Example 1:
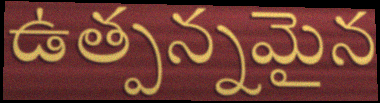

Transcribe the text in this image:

ఉత్పన్నమైన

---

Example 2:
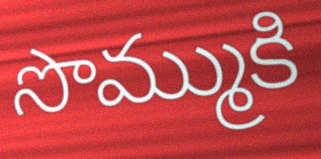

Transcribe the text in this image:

సొమ్ముకి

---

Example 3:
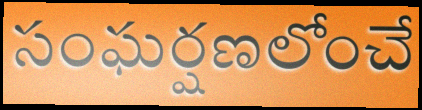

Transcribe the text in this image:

సంఘర్షణలోంచే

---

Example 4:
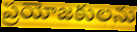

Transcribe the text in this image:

ప్రయోజకులను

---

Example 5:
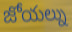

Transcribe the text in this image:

జోయల్ను